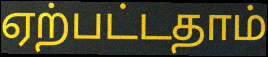
ஏற்பட்டதாம்